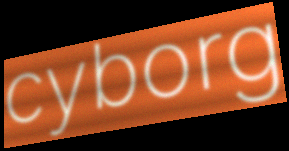
cyborg